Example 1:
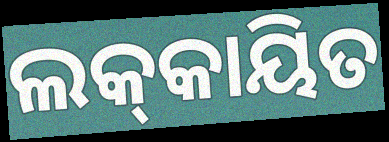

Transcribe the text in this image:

ଲକ୍‌କାୟିତ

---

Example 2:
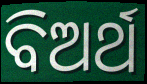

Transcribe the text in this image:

ବିଅର୍ଥ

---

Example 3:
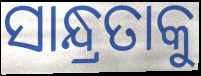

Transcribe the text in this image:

ସାନ୍ଧ୍ରତାକୁ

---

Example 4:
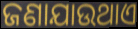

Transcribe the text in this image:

ଜଣାଯାଉଥାଏ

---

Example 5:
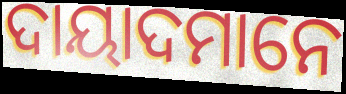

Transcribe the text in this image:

ଦାୟାଦମାନେ